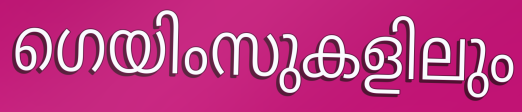
ഗെയിംസുകളിലും